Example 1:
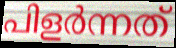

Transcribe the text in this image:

പിളർന്നത്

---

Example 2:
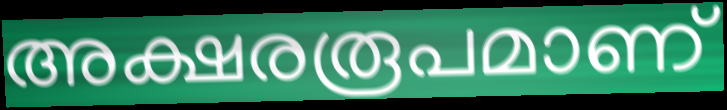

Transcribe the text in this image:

അക്ഷരരൂപമാണ്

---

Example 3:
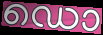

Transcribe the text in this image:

ഡൊ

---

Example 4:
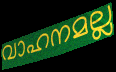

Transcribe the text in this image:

വാഹനമല്ല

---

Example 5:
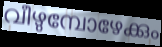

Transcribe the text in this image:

വീഴുമ്പോഴേക്കും